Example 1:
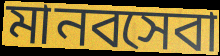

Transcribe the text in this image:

মানবসেবা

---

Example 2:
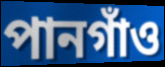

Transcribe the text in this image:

পানগাঁও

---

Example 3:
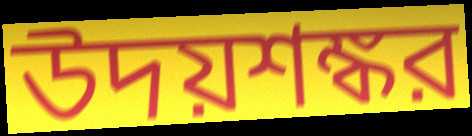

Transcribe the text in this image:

উদয়শঙ্কর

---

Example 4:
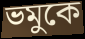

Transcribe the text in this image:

ভমুকে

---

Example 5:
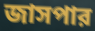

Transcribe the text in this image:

জাসপার